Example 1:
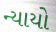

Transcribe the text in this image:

ન્યાયો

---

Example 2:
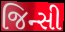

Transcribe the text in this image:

જિન્સી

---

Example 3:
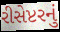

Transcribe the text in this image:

રીસેપ્ટરનું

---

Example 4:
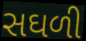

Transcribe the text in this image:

સઘળી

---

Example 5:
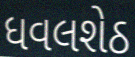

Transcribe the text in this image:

ધવલશેઠ